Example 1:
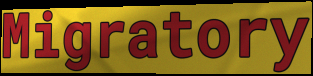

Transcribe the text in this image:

Migratory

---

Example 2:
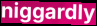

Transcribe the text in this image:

niggardly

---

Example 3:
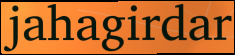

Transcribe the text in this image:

jahagirdar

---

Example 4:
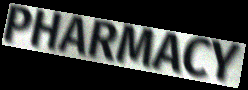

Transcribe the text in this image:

PHARMACY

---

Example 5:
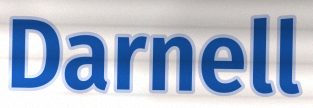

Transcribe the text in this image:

Darnell